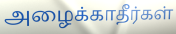
அழைக்காதீர்கள்